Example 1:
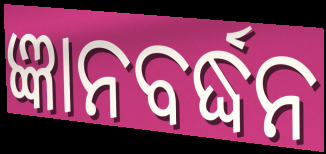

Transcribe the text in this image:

ଜ୍ଞାନବର୍ଦ୍ଧନ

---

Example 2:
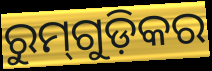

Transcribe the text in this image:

ରୁମ୍‌ଗୁଡ଼ିକର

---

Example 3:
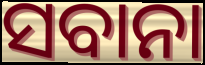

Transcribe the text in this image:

ସବାନା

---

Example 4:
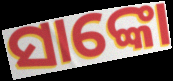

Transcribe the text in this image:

ସାଙ୍କୋ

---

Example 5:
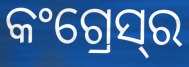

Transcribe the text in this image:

କଂଗ୍ରେସ୍‌ର